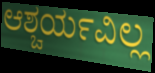
ಆಶ್ಚರ್ಯವಿಲ್ಲ